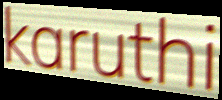
karuthi